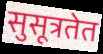
सुसूत्रतेत